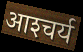
आश्‍चर्य